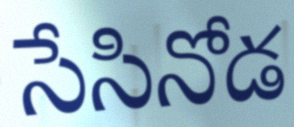
సేసినోడ